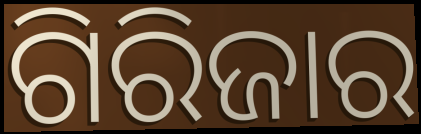
ଗିରିଜାର